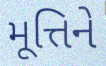
મૂત્તિને